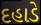
દહાડે